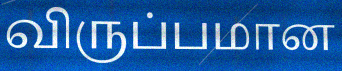
விருப்பமான